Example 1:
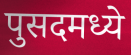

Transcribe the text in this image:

पुसदमध्ये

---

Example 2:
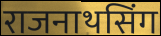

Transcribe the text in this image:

राजनाथसिंग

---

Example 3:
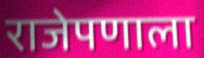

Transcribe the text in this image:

राजेपणाला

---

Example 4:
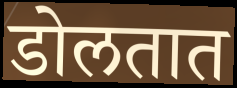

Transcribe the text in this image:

डोलतात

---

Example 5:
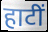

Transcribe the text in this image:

हाटीं